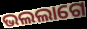
ଭଲଲାଗେ